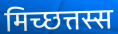
मिच्छत्तस्स